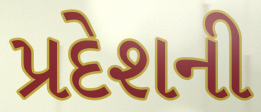
પ્રદેશની